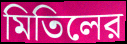
মিতিলের